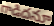
గాడిదనూ